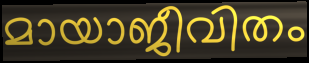
മായാജീവിതം